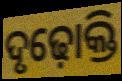
ଦୃଢ଼ୋକ୍ତି